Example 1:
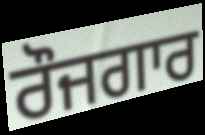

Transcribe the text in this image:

ਰੌਜਗਾਰ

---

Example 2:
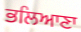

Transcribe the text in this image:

ਭਲਿਆਣਾ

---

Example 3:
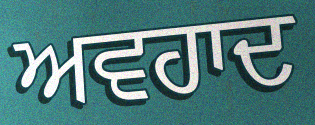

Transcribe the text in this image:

ਅਵਹਾਦ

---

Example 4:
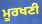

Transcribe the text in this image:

ਮੂਰਖਣੀ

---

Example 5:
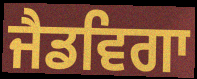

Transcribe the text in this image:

ਜੈਡਵਿਗਾ